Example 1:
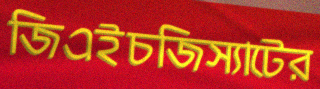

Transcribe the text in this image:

জিএইচজিস্যাটের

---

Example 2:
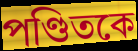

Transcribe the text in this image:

পণ্ডিতকে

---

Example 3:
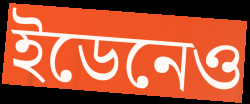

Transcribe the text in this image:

ইডেনেও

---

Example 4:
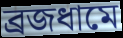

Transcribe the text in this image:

ব্রজধামে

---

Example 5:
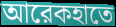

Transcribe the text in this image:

আরেকহাতে